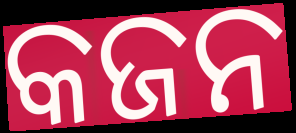
କଜନ